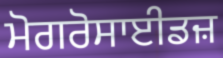
ਮੋਗਰੋਸਾਈਡਜ਼